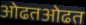
ओढतओढत